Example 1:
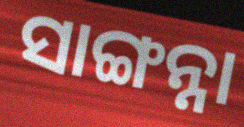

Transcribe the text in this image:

ସାଙ୍ଗନ୍ନା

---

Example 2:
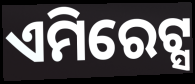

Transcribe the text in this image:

ଏମିରେଟ୍ସ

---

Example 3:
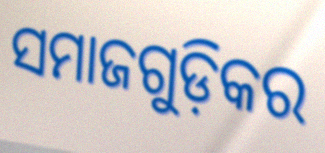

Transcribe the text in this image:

ସମାଜଗୁଡ଼ିକର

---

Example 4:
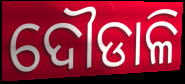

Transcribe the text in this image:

ଦୌଡାଳି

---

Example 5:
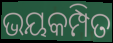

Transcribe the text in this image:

ଭୟକମ୍ପିତ